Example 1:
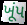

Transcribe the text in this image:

ખૂંપ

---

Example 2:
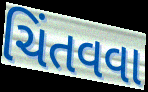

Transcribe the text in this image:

ચિંતવવા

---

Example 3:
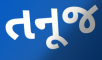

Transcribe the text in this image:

તનૂજ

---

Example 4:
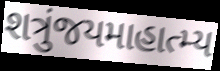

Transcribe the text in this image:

શત્રુંજયમાહાત્મ્ય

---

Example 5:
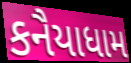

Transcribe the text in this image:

કનૈયાધામ